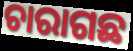
ଚାରାଗଛ